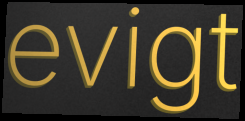
evigt